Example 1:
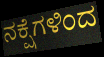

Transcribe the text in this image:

ನಕ್ಷೆಗಳಿಂದ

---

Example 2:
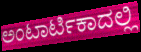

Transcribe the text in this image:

ಅಂಟಾರ್ಟಿಕಾದಲ್ಲಿ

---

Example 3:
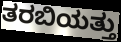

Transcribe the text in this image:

ತರಬಿಯತ್ತು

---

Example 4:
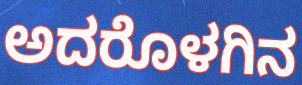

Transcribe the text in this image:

ಅದರೊಳಗಿನ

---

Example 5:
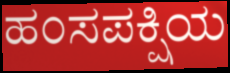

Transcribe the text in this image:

ಹಂಸಪಕ್ಷಿಯ